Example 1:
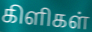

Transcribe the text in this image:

கிளிகள்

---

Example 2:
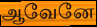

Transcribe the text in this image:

ஆவேனே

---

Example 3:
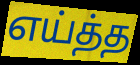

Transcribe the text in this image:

எய்த்த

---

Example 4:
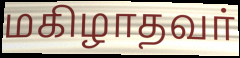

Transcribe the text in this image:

மகிழாதவர்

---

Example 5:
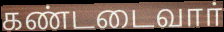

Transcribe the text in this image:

கண்டடைவார்